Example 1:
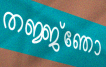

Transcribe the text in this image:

തജ്ജ്ഞോ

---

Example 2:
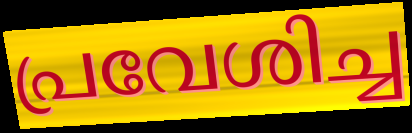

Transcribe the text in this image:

പ്രവേശിച്ച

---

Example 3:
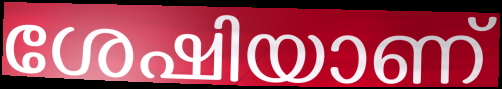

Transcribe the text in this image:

ശേഷിയാണ്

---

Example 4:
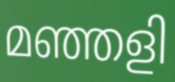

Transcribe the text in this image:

മഞ്ഞളി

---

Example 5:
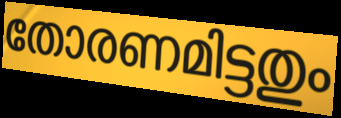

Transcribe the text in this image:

തോരണമിട്ടതും